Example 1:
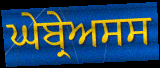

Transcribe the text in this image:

ਘੇਬ੍ਰੇਅਸਸ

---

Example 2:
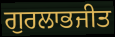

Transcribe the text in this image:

ਗੁਰਲਾਭਜੀਤ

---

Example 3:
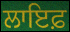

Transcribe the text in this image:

ਲਾਇਫ਼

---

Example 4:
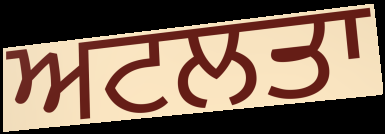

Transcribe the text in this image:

ਅਟਲਤਾ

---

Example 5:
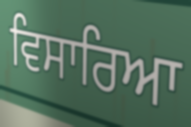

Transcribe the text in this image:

ਵਿਸਾਰਿਆ